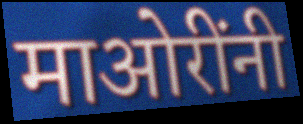
माओरींनी